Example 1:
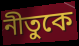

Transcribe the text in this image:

নীতুকে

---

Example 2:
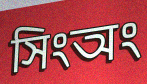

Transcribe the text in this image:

সিংঅং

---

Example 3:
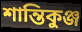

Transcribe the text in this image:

শান্তিকুঞ্জ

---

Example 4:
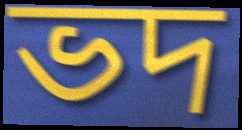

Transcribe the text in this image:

ভদ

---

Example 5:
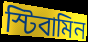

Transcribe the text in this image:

স্টিবামিন